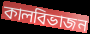
কালবিভাজন